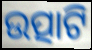
ଉତ୍ପାଟି